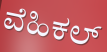
ವೆಹಿಕಲ್